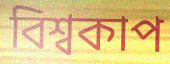
বিশ্বকাপ